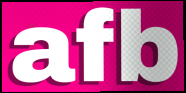
afb